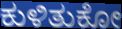
ಕುಳಿತುಕೋ